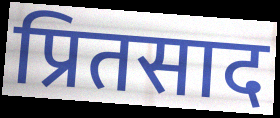
प्रितसाद